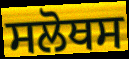
ਸਲੋਥਸ